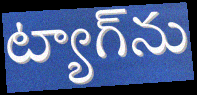
ట్యాగ్‌ను